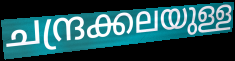
ചന്ദ്രക്കലയുള്ള